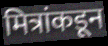
मित्रांकडून